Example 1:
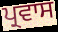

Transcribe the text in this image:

ਪ੍ਰਵਾਸ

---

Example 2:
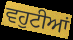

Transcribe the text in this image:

ਵਹੁਟੀਆਂ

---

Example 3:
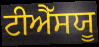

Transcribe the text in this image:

ਟੀਐੱਸਯੂ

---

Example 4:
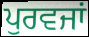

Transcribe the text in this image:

ਪੁਰਵਜਾਂ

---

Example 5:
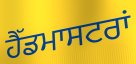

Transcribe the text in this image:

ਹੈੱਡਮਾਸਟਰਾਂ